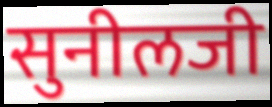
सुनीलजी